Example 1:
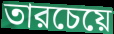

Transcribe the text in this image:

তারচেয়ে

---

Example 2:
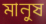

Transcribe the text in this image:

মানুষ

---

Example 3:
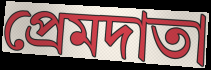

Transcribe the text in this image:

প্রেমদাতা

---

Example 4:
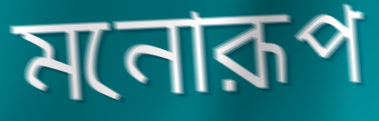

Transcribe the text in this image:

মনোরূপ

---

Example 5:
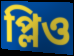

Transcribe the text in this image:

প্লিও